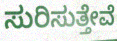
ಸುರಿಸುತ್ತೇವೆ